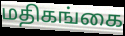
மதிகங்கை